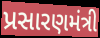
પ્રસારણમંત્રી